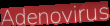
Adenovirus